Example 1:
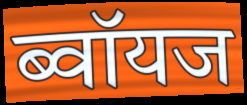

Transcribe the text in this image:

ब्वॉयज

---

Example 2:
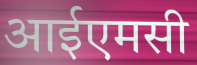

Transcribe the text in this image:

आईएमसी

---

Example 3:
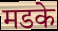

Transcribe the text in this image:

मडके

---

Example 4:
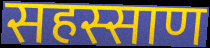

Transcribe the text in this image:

सहस्साण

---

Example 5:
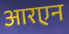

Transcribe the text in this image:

आरएन